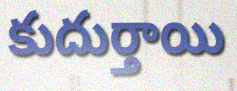
కుదుర్తాయి